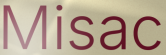
Misac